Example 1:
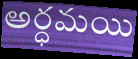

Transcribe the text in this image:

అర్ధమయి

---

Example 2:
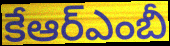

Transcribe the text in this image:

కేఆర్ఎంబీ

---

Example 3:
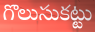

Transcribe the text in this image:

గొలుసుకట్టు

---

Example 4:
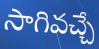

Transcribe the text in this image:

సాగివచ్చే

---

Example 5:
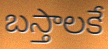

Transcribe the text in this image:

బస్తాలకే